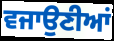
ਵਜਾਉਣੀਆਂ